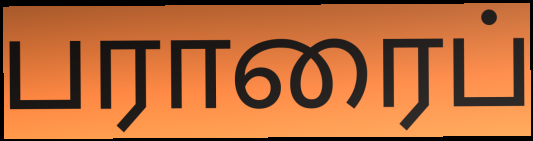
பராரைப்